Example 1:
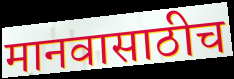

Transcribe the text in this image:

मानवासाठीच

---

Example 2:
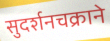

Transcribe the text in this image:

सुदर्शनचक्राने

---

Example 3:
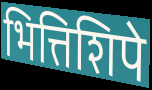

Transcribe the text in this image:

भित्तिशिपे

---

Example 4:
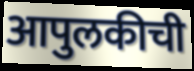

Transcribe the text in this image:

आपुलकीची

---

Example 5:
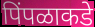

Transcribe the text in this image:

पिंपळाकडे